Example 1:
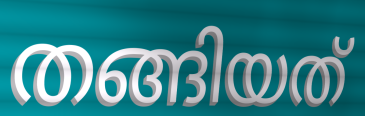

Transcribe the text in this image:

തങ്ങിയത്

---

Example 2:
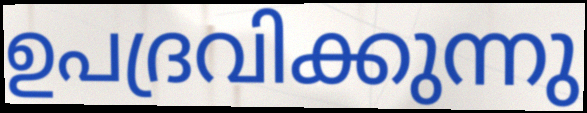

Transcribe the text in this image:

ഉപദ്രവിക്കുന്നു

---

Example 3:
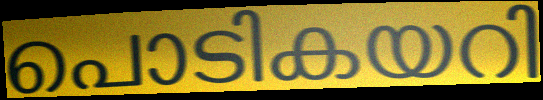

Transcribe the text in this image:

പൊടികയറി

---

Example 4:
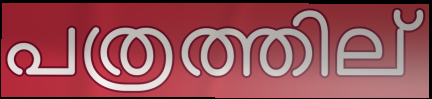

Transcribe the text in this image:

പത്രത്തില്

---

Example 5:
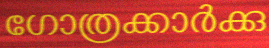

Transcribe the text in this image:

ഗോത്രക്കാർക്കു